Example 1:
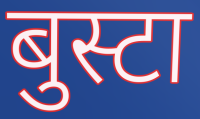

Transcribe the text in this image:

बुस्टा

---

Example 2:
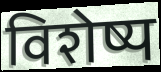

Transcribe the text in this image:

विशेष्य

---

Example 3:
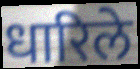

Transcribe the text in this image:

धारिले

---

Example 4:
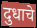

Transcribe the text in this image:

दुधाचे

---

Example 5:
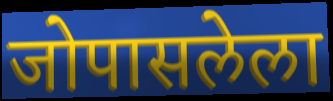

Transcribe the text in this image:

जोपासलेला